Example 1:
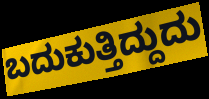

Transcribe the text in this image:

ಬದುಕುತ್ತಿದ್ದುದು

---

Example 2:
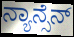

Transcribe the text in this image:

ನ್ಯಾನ್ಸೆನ್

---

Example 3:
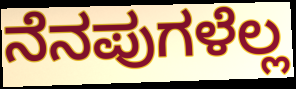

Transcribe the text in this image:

ನೆನಪುಗಳೆಲ್ಲ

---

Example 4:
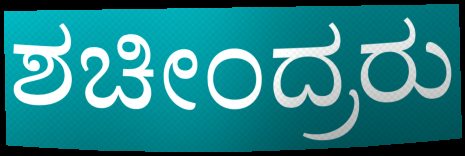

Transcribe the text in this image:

ಶಚೀಂದ್ರರು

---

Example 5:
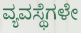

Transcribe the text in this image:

ವ್ಯವಸ್ಥೆಗಳೇ